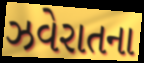
ઝવેરાતના